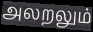
அலறலும்